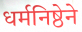
धर्मनिष्ठेने